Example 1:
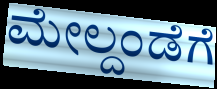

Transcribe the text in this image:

ಮೇಲ್ದಂಡೆಗೆ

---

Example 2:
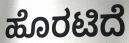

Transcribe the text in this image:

ಹೊರಟಿದೆ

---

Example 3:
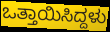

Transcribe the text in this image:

ಒತ್ತಾಯಿಸಿದ್ದಳು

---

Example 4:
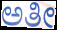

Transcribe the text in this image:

ಅತೀ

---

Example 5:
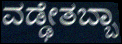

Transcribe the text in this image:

ವಡ್ಢೇತಬ್ಬಾ